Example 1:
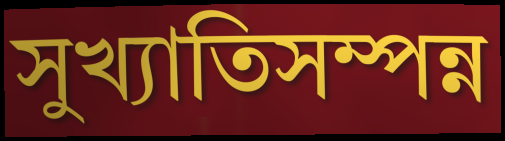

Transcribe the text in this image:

সুখ্যাতিসম্পন্ন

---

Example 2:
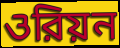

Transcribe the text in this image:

ওরিয়ন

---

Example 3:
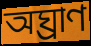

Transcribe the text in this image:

অঘ্রাণ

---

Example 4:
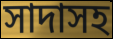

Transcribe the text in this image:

সাদাসহ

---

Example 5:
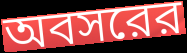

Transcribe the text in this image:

অবসরের